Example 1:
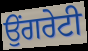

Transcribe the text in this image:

ਉਂਗਰੇਟੀ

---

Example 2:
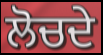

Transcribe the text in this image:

ਲੋਚਦੇ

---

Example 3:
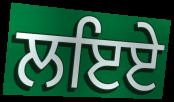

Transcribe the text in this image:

ਲਇਏ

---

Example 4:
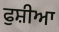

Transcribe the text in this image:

ਫੁਸ਼ੀਆ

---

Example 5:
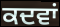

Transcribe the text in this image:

ਕਦਵਾਂ